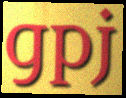
gpj